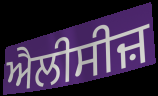
ਐਲੀਸੀਜ਼